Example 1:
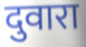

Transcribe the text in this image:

दुवारा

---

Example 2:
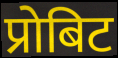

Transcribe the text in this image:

प्रोबिट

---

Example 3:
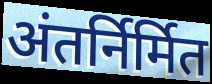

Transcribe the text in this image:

अंतर्निर्मित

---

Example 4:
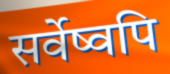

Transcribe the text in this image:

सर्वेष्वपि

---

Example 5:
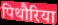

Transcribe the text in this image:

पिथौरिया